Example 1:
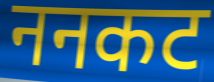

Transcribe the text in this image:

ननकट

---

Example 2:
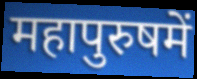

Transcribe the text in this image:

महापुरुषमें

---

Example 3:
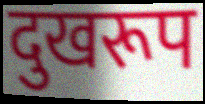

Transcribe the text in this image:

दुखरूप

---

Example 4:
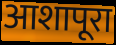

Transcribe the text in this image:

आशापूरा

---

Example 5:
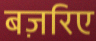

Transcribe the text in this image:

बज़रिए